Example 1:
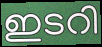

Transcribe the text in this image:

ഇടറി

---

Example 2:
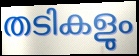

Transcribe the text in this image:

തടികളും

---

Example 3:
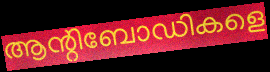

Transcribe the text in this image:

ആന്റിബോഡികളെ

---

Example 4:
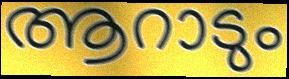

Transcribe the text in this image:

ആറാടും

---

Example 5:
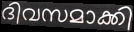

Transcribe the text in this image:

ദിവസമാക്കി